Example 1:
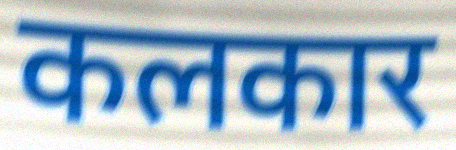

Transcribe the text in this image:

कलकार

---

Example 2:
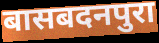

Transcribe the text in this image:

बासबदनपुरा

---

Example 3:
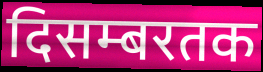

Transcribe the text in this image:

दिसम्बरतक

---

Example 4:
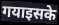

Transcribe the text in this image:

गयाइसके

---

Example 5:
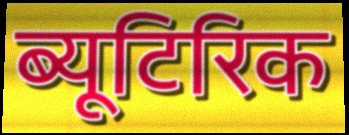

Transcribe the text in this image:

ब्यूटिरिक